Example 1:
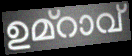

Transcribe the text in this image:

ഉമ്റാവ്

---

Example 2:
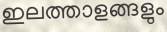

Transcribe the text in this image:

ഇലത്താളങ്ങളും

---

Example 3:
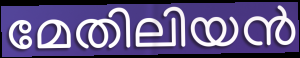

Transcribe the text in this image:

മേതിലിയൻ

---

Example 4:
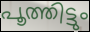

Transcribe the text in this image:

പൂത്തിട്ടും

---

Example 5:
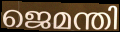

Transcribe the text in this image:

ജെമന്തി